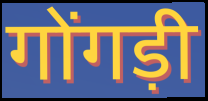
गोंगड़ी